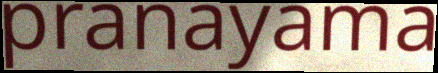
pranayama